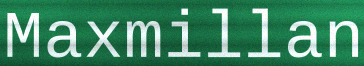
Maxmillan